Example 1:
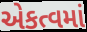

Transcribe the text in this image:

એકત્વમાં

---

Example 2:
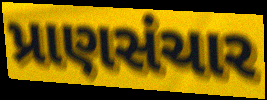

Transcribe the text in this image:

પ્રાણસંચાર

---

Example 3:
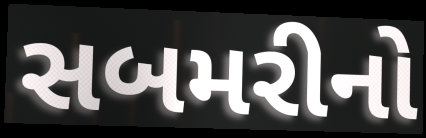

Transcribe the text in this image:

સબમરીનો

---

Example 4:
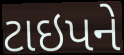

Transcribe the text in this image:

ટાઇપને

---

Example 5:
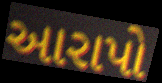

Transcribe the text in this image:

આરાપો